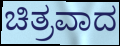
ಚಿತ್ರವಾದ